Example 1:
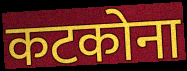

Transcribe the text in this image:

कटकोना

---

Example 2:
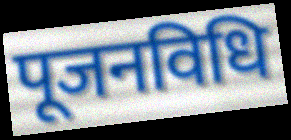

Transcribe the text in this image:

पूजनविधि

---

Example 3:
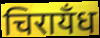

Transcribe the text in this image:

चिरायँध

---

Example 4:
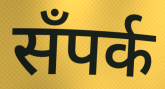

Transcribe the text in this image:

सँपर्क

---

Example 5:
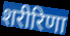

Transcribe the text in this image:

शरीरिणा